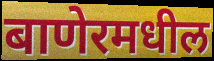
बाणेरमधील